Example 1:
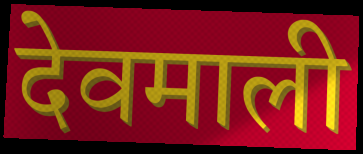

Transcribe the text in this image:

देवमाली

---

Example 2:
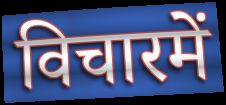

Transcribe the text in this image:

विचारमें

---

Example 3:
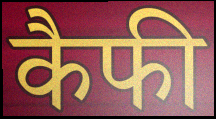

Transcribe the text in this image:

कैफी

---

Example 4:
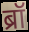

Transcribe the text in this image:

ब्रॉ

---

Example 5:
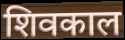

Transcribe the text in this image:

शिवकाल